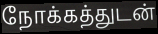
நோக்கத்துடன்